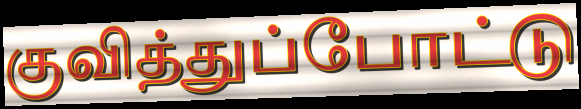
குவித்துப்போட்டு